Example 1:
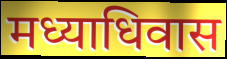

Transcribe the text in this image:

मध्याधिवास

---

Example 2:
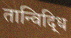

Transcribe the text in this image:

तान्विद्धि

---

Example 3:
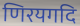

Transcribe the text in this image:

णिरयगदि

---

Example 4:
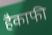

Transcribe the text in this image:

हैकाफी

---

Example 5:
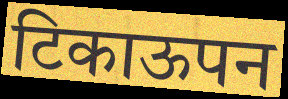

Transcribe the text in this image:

टिकाऊपन